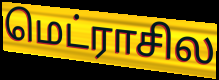
மெட்ராசில